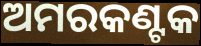
ଅମରକଣ୍ଟକ